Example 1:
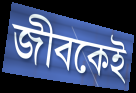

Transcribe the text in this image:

জীবকেই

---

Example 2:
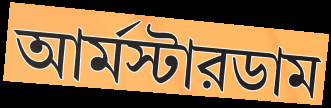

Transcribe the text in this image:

আর্মস্টারডাম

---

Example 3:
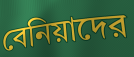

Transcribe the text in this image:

বেনিয়াদের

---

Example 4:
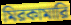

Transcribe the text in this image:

মিরকামারি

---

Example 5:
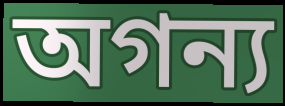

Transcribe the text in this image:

অগন্য